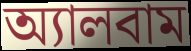
অ্যালবাম